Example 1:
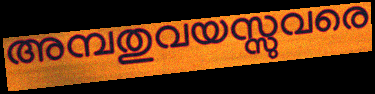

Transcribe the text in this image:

അമ്പതുവയസ്സുവരെ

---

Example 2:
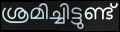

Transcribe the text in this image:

ശ്രമിച്ചിട്ടുണ്ട്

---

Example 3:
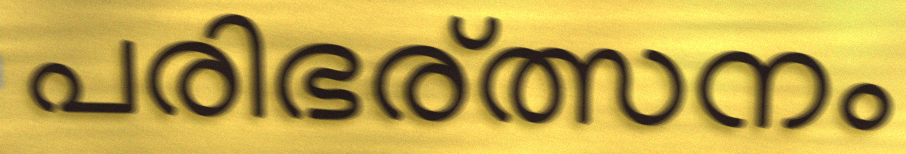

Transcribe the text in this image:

പരിഭര്ത്സനം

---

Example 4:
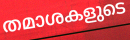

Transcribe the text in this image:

തമാശകളുടെ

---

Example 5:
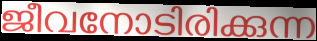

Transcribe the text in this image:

ജീവനോടിരിക്കുന്ന